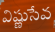
విష్ణుసేవ